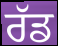
ਰੱਡ